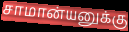
சாமான்யனுக்கு